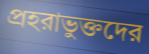
প্রহরাভুক্তদের